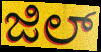
ಜಿಲ್